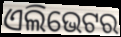
ଏଲିଭେଟର